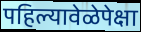
पहिल्यावेळेपेक्षा